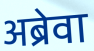
अब्रेवा